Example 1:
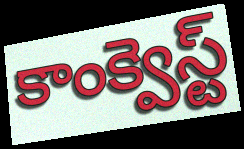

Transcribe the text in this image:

కాంక్వెస్ట్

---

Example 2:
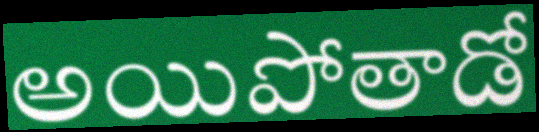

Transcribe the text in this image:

అయిపోతాడో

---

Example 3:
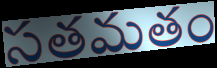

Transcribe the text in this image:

సతమతం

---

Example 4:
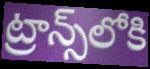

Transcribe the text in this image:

ట్రాన్స్‌లోకి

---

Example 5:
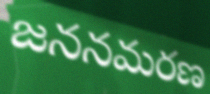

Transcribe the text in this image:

జననమరణ